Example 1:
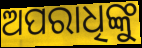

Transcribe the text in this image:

ଅପରାଧିଙ୍କୁ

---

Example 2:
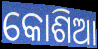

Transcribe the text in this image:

କୋଶିଆ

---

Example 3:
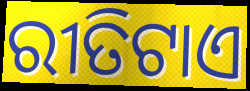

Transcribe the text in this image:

ରୀତିଟାଏ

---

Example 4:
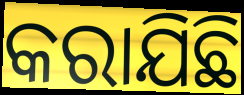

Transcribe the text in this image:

କରାଯିଛି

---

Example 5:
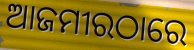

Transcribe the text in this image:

ଆଜମୀରଠାରେ